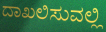
ದಾಖಲಿಸುವಲ್ಲಿ